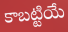
కాబట్టియే